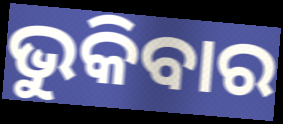
ଭୁକିବାର